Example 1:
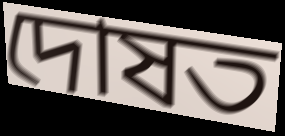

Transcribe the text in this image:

দোষত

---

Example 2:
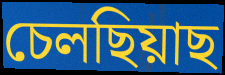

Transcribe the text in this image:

চেলছিয়াছ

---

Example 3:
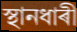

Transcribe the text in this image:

স্থানধাৰী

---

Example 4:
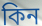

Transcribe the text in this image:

কিন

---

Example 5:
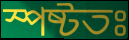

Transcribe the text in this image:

স্পষ্টতঃ